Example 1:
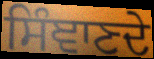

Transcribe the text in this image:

ਸਿੰਞਾਣਦੇ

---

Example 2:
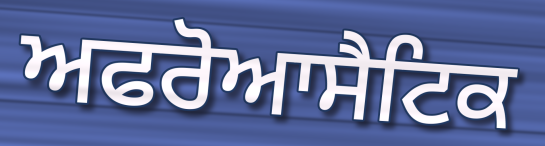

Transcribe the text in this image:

ਅਫਰੋਆਸੈਟਿਕ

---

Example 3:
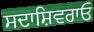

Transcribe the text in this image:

ਸਦਾਸ਼ਿਵਰਾਓ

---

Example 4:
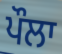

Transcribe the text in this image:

ਪੌਲਾ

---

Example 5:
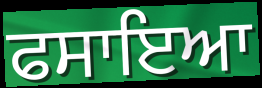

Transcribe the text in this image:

ਫਸਾਇਆ